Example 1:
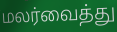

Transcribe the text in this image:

மலர்வைத்து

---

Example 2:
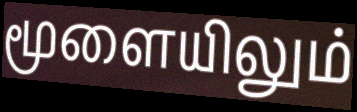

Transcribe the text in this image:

மூளையிலும்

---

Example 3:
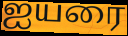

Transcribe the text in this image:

ஐயரை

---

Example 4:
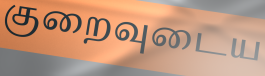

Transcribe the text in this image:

குறைவுடைய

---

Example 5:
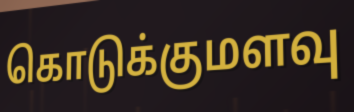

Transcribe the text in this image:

கொடுக்குமளவு